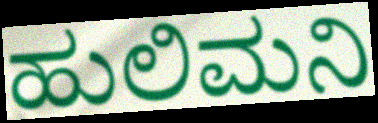
ಹುಲಿಮನಿ